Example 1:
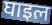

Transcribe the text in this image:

घाइल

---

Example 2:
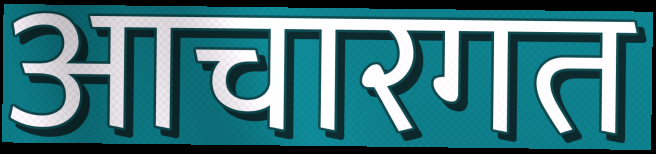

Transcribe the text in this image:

आचारगत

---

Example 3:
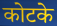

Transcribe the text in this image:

कोटके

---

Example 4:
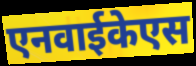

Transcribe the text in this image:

एनवाईकेएस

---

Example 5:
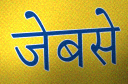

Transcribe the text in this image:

जेबसे